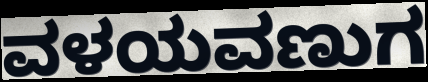
ವಳಯವಣುಗ